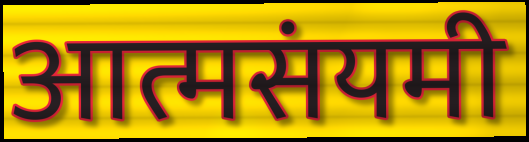
आत्मसंयमी